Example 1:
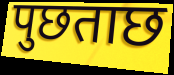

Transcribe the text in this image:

पुछताछ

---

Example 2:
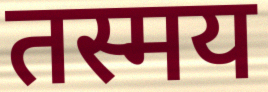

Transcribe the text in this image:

तस्मय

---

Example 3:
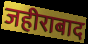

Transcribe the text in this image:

जहीराबाद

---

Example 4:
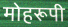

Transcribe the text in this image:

मोहरूपी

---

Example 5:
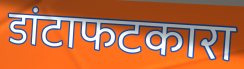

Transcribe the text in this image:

डांटाफटकारा